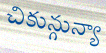
చికున్గున్యా